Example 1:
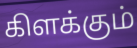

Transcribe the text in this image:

கிளக்கும்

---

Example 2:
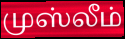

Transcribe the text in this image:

முஸ்லீம்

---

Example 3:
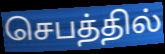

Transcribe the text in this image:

செபத்தில்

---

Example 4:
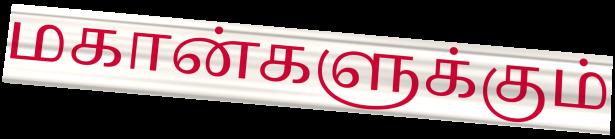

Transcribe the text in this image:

மகான்களுக்கும்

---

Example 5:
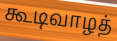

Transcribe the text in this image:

கூடிவாழத்